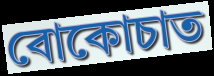
বোকোচাত